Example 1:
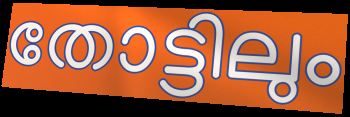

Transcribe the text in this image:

തോട്ടിലും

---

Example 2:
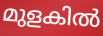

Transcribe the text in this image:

മുളകിൽ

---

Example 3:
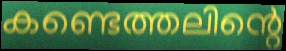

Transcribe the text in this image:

കണ്ടെത്തലിന്റെ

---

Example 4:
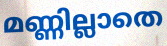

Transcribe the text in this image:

മണ്ണില്ലാതെ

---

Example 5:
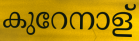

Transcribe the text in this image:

കുറേനാള്